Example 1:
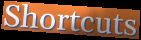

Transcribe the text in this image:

Shortcuts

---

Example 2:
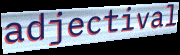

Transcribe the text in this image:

adjectival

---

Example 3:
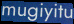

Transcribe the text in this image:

mugiyitu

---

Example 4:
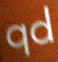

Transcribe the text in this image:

qd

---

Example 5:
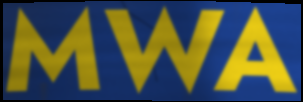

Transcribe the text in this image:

MWA